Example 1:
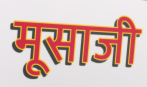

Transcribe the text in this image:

मूसाजी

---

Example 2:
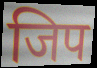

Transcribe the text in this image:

जिप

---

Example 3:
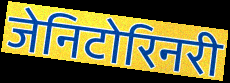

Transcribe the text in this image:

जेनिटोरिनरी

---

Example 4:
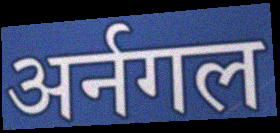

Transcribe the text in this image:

अर्नगल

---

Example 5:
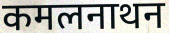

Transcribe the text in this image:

कमलनाथन